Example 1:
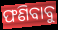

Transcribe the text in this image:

ଫଣିବାବୁ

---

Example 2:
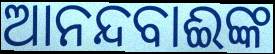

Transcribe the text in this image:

ଆନନ୍ଦବାଈଙ୍କ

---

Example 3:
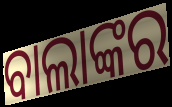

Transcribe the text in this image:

ବାଲାଙ୍କର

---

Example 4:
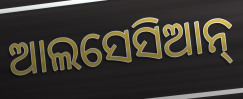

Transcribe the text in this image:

ଆଲସେସିଆନ୍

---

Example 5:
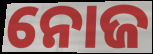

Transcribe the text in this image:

ନୋଜ